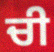
ਚੀ